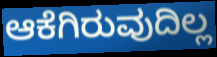
ಆಕೆಗಿರುವುದಿಲ್ಲ